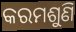
କରମଶୁଣି